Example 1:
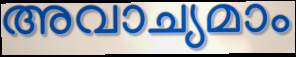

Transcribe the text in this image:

അവാച്യമാം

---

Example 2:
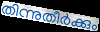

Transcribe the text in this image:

തിന്നുതീർക്കും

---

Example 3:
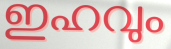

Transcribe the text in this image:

ഇഹവും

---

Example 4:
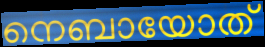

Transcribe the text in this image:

നെബായോത്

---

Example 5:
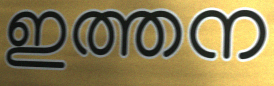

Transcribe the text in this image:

ഇത്തന